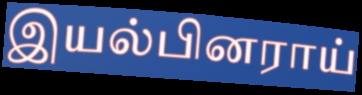
இயல்பினராய்